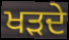
ਖੜਦੇ